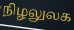
நிழலுலக